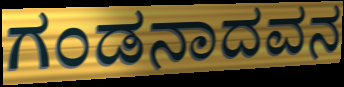
ಗಂಡನಾದವನ